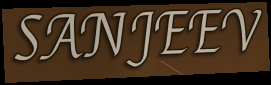
SANJEEV